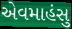
એવમાહંસુ